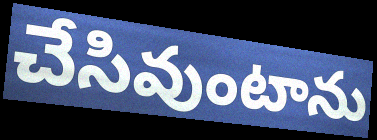
చేసివుంటాను